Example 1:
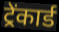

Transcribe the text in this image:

ट्रेंकार्ड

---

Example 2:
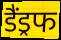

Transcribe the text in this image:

डैंड्रफ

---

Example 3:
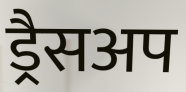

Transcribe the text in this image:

ड्रैसअप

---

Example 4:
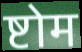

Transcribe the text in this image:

ष्टोम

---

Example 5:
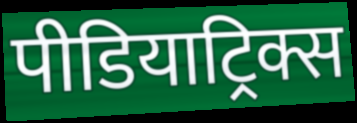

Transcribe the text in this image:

पीडियाट्रिक्स